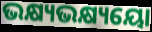
ଭକ୍ଷ୍ୟଭକ୍ଷ୍ୟୟୋ